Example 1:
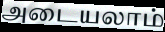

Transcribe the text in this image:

அடையலாம்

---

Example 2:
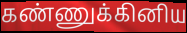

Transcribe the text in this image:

கண்ணுக்கினிய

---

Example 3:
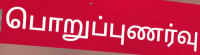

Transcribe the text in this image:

பொறுப்புணர்வு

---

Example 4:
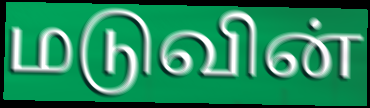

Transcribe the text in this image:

மடுவின்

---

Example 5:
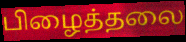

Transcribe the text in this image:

பிழைத்தலை